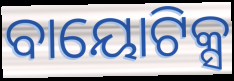
ବାୟୋଟିକ୍ସ